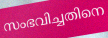
സംഭവിച്ചതിനെ